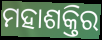
ମହାଶକ୍ତିର